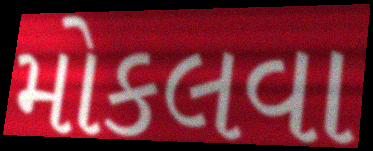
મોકલવા